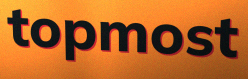
topmost